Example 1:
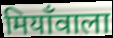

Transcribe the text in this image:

मियाँवाला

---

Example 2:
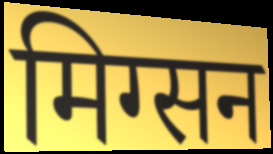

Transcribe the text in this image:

मिग्सन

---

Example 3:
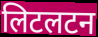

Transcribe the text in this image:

लिटलटन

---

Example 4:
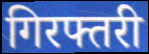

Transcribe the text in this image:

गिरफ्तरी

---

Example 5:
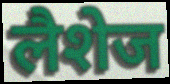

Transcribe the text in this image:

लैशेज